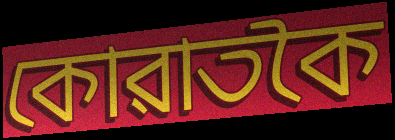
কোৱাতকৈ